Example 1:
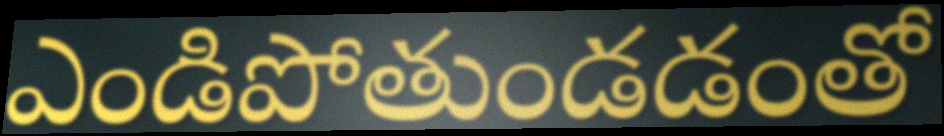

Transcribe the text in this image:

ఎండిపోతుండడంతో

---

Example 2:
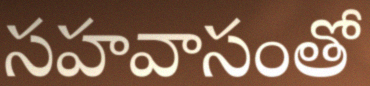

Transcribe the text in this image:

సహవాసంతో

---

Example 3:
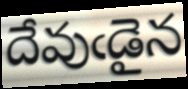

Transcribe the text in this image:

దేవుఁడైన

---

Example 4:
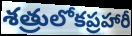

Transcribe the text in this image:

శత్రులోకప్రహారీ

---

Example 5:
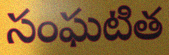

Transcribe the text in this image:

సంఘటిత